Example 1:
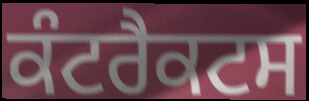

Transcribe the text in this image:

ਕੰਟਰੈਕਟਸ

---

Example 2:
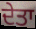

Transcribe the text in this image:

ਦੇਤਾ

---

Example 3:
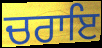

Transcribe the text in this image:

ਚਰਾਇ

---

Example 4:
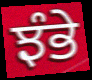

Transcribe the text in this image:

ਝੰਭੇ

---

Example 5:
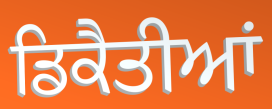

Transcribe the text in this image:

ਡਿਕੈਤੀਆਂ